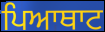
ਪਿਆਥਾਟ